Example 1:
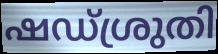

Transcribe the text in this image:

ഷഡ്ശ്രുതി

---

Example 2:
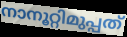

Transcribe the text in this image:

നാനൂറ്റിമുപ്പത്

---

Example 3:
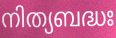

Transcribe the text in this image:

നിത്യബദ്ധഃ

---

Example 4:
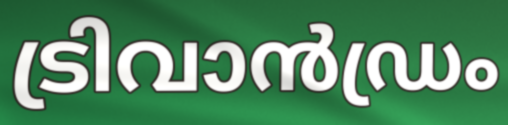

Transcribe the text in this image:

ട്രിവാൻഡ്രം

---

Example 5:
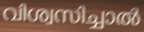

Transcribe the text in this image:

വിശ്വസിച്ചാൽ